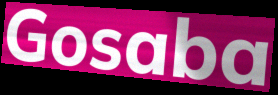
Gosaba